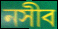
নসীব